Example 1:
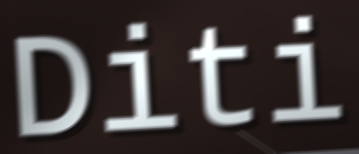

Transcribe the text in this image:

Diti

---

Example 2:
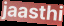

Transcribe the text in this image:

jaasthi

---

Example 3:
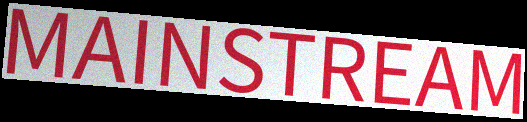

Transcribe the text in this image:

MAINSTREAM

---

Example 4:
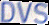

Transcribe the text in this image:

DVS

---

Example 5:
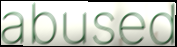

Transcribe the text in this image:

abused